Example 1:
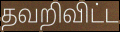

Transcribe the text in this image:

தவறிவிட்ட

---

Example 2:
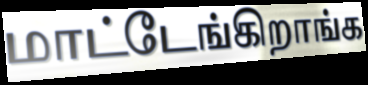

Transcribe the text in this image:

மாட்டேங்கிறாங்க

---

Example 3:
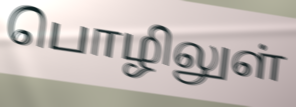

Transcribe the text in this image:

பொழிலுள்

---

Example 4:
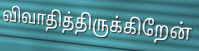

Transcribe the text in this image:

விவாதித்திருக்கிறேன்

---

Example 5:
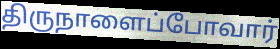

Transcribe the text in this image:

திருநாளைப்போவார்